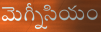
మెగ్నీసియం